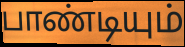
பாண்டியும்